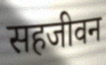
सहजीवन